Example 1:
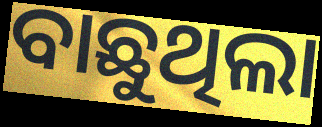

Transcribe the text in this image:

ବାଛୁଥିଲା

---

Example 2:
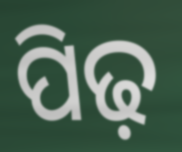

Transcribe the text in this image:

ପିଢ଼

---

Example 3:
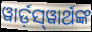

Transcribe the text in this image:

ୱାର୍ଡ଼ସ୍‌ୱାର୍ଥଙ୍କ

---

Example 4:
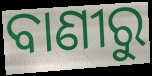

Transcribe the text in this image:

ବାଣୀରୁ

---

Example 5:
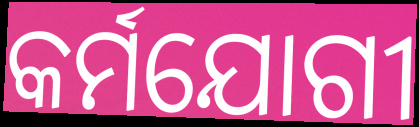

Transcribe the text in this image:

କର୍ମଯୋଗୀ